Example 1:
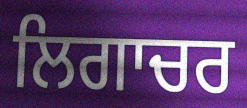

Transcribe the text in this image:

ਲਿਗਾਚਰ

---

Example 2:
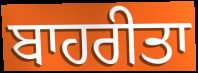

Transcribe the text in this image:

ਬਾਹਰੀਤਾ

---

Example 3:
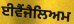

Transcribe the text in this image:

ਈਵੈਂਜੈਲਿਅਮ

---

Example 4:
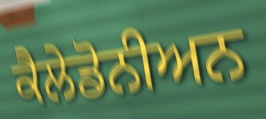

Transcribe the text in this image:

ਕੈਲੇਡੋਨੀਅਨ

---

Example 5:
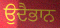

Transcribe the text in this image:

ਉਦੈਭਾਨ